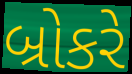
બ્રોકરે